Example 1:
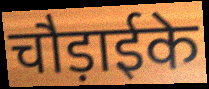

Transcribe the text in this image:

चौड़ाईके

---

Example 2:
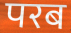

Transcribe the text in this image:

परब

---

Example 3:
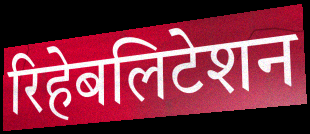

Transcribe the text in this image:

रिहेबलिटेशन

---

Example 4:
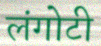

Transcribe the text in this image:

लंगोटी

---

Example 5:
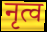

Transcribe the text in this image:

नृत्व